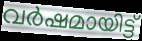
വർഷമായിട്ട്